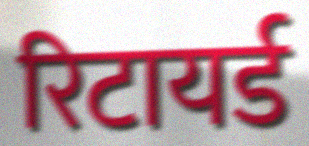
रिटायर्ड